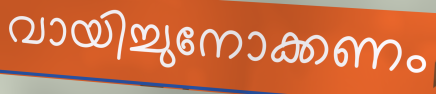
വായിച്ചുനോക്കണം